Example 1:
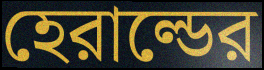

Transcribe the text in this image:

হেরাল্ডের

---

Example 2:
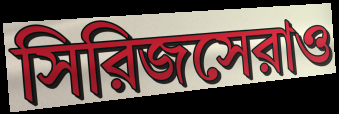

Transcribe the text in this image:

সিরিজসেরাও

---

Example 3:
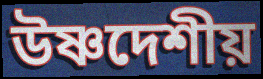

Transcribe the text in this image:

উষ্ণদেশীয়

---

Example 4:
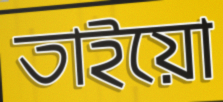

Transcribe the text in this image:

তাইয়ো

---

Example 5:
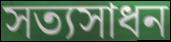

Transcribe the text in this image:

সত্যসাধন